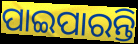
ପାଇପାରନ୍ତି